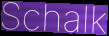
Schalk